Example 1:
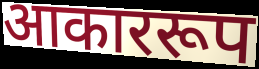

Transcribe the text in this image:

आकाररूप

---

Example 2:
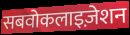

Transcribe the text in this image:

सबवोकलाइज़ेशन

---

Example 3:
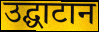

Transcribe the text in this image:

उद्घाटान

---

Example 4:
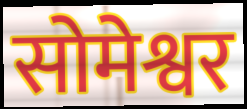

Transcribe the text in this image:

सोमेश्वर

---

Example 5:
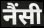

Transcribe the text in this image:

नैंसी